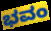
ಭವಂ